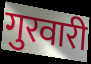
गुरवारी